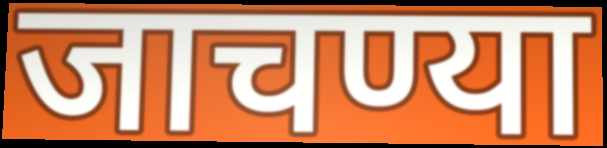
जाचण्या